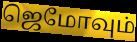
ஜெமோவும்